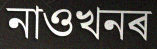
নাওখনৰ